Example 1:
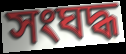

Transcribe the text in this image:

সংঘদ্ধ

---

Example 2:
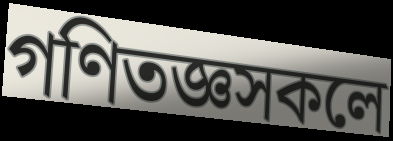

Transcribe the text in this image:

গণিতজ্ঞসকলে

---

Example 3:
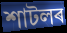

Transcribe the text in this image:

শাটলৰ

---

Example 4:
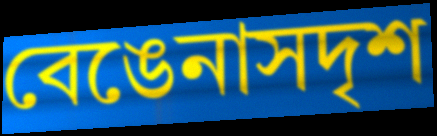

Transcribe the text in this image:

বেঙেনাসদৃশ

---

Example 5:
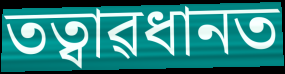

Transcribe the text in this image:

তত্বাৱধানত